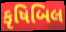
કૃષિબિલ